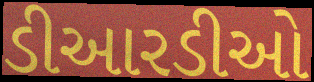
ડીઆરડીઓ